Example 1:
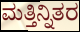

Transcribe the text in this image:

ಮತ್ತಿನ್ನಿತರ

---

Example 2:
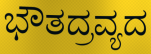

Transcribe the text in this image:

ಭೌತದ್ರವ್ಯದ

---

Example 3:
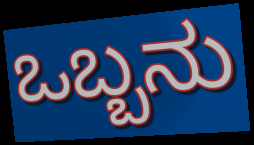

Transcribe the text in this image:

ಒಬ್ಬನು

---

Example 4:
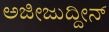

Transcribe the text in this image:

ಅಜೀಜುದ್ದೀನ್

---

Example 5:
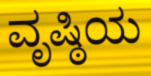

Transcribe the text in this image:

ವೃಷ್ಠಿಯ